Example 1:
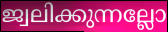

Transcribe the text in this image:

ജ്വലിക്കുന്നല്ലോ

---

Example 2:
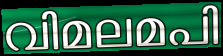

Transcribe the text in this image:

വിമലമപി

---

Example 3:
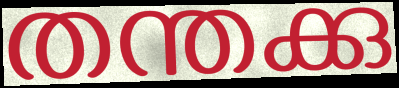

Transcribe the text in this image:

തന്തക്കു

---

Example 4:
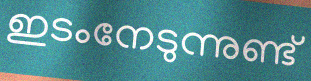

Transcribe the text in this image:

ഇടംനേടുന്നുണ്ട്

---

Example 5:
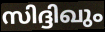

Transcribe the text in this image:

സിദ്ദിഖും